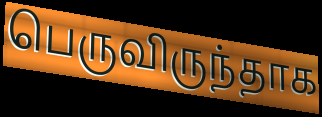
பெருவிருந்தாக